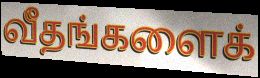
வீதங்களைக்